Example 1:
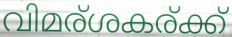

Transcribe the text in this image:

വിമര്ശകര്ക്ക്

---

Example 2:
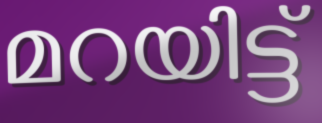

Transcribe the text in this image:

മറയിട്ട്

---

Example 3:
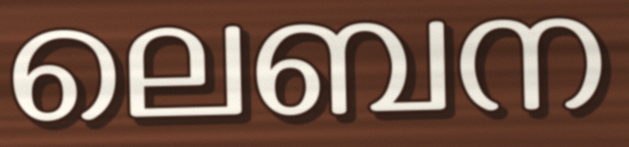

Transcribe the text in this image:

ലെബന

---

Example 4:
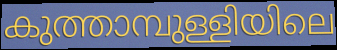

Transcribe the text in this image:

കുത്താമ്പുള്ളിയിലെ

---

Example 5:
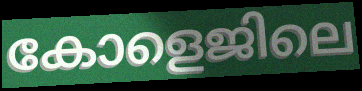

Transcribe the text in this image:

കോളെജിലെ